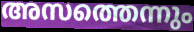
അസത്തെന്നും